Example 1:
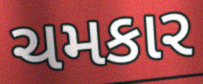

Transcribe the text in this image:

ચમકાર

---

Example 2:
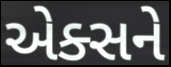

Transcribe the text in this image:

એક્સને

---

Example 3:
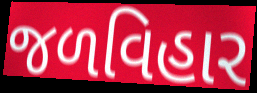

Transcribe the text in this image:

જળવિહાર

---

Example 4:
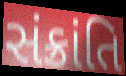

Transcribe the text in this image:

સંક્રાંતિ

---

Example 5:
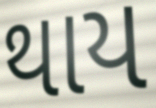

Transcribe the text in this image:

થાય